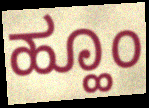
ಹ್ಹೂಂ